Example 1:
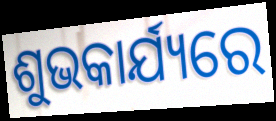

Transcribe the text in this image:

ଶୁଭକାର୍ଯ୍ୟରେ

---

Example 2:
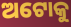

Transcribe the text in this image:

ଅଟୋକୁ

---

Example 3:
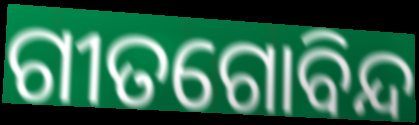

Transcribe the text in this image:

ଗୀତଗୋବିନ୍ଦ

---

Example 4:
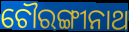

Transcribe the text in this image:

ଚୌରଙ୍ଗୀନାଥ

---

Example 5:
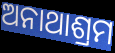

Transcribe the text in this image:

ଅନାଥାଶ୍ରମ